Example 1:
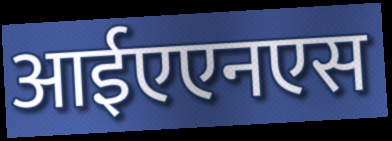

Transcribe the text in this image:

आईएएनएस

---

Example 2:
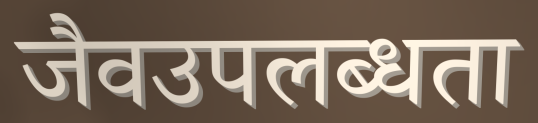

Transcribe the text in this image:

जैवउपलब्धता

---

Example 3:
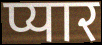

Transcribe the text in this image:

प्यार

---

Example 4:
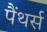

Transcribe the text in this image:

पैंथर्स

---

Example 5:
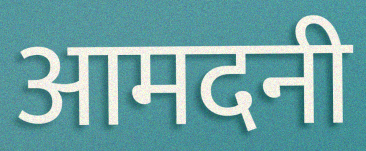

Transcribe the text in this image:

आमदनी